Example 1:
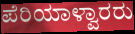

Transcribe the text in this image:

ಪೆರಿಯಾಳ್ವಾರರು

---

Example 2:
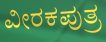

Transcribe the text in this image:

ವೀರಕಪುತ್ರ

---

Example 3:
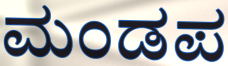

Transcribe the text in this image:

ಮಂಡಪ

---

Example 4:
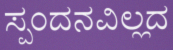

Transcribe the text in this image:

ಸ್ಪಂದನವಿಲ್ಲದ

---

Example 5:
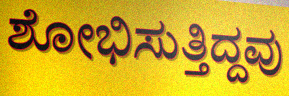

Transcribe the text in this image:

ಶೋಭಿಸುತ್ತಿದ್ದವು